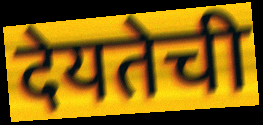
देयतेची